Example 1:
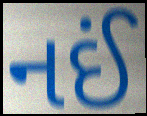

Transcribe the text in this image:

નઈં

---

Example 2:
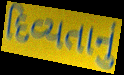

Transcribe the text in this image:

દિવ્યતાનું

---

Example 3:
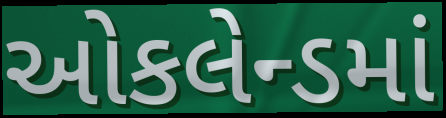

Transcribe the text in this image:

ઓકલેન્ડમાં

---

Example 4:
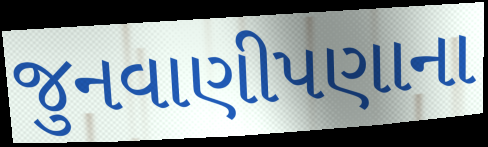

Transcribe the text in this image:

જુનવાણીપણાના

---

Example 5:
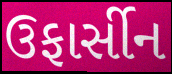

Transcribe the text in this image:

ઉફાર્સીન